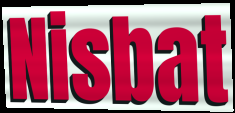
Nisbat